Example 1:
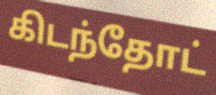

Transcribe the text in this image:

கிடந்தோட்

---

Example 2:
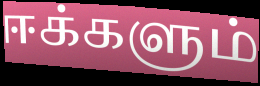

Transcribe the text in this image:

ஈக்களும்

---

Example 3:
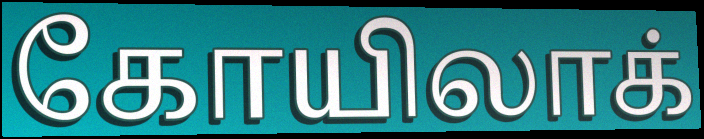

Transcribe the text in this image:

கோயிலாக்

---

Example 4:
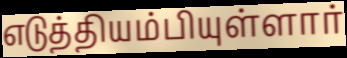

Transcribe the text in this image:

எடுத்தியம்பியுள்ளார்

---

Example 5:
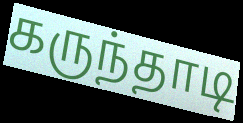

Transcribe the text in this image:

கருந்தாடி